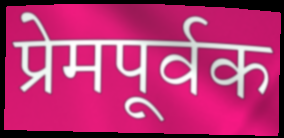
प्रेमपूर्वक